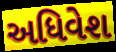
અધિવેશ